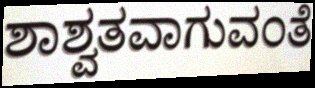
ಶಾಶ್ವತವಾಗುವಂತೆ